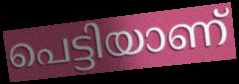
പെട്ടിയാണ്